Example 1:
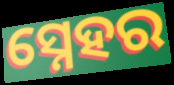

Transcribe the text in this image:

ସ୍ନେହର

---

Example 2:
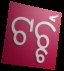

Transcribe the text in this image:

ଟର୍ଚ୍ଚ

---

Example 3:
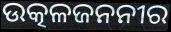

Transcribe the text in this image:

ଉତ୍କଳଜନନୀର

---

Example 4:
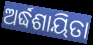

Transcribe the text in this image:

ଅର୍ଦ୍ଧଶାୟିତା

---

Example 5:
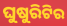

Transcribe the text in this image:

ଘୁଷୁରିଟିର